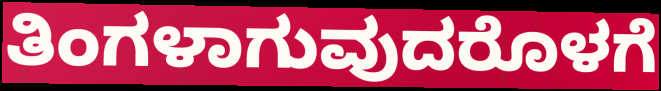
ತಿಂಗಳಾಗುವುದರೊಳಗೆ